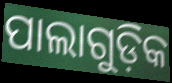
ପାଲାଗୁଡ଼ିକ